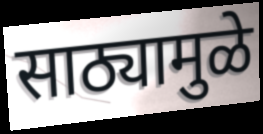
साठ्यामुळे